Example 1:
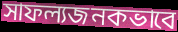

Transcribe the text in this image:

সাফল্যজনকভাবে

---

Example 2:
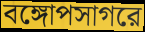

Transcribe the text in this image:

বঙ্গোপসাগরে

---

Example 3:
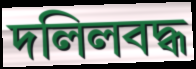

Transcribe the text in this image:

দলিলবদ্ধ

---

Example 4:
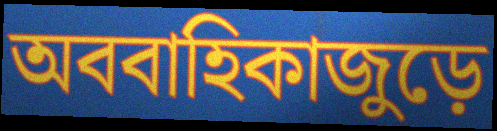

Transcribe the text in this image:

অববাহিকাজুড়ে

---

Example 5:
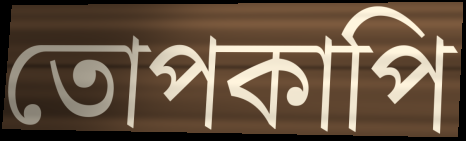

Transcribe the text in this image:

তোপকাপি